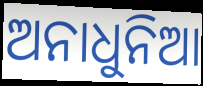
ଅନାଧୁନିଆ